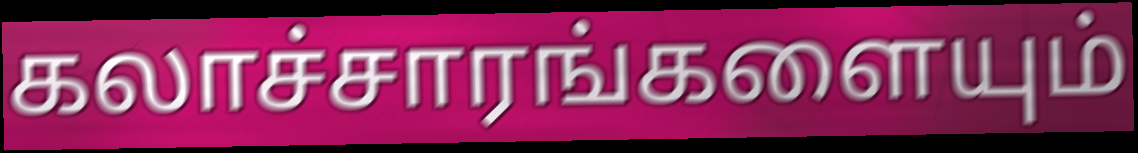
கலாச்சாரங்களையும்